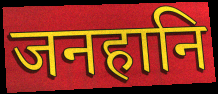
जनहानि